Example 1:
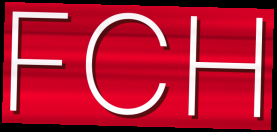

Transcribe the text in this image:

FCH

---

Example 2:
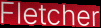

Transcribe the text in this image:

Fletcher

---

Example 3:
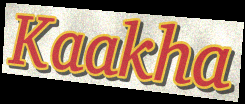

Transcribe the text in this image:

Kaakha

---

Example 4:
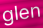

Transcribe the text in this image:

glen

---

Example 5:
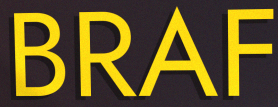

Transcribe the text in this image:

BRAF